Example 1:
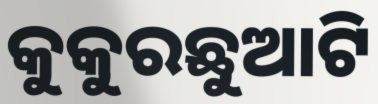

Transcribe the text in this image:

କୁକୁରଛୁଆଟି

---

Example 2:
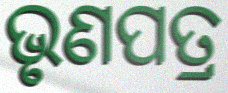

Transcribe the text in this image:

ଭୃଣପତ୍ର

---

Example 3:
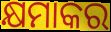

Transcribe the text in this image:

କ୍ଷମାକର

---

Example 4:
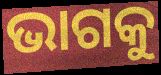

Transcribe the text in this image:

ଭାଗକୁ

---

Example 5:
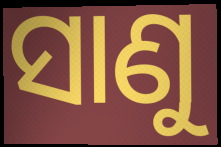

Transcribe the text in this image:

ସାଣୁ